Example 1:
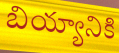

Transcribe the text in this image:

బియ్యానికి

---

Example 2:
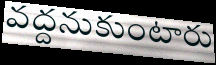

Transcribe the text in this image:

వద్దనుకుంటారు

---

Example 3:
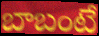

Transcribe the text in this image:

బాబంటే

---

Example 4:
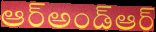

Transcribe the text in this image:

ఆర్అండ్ఆర్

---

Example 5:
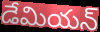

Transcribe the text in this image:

డేమియన్